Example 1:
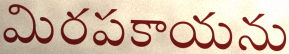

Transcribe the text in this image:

మిరపకాయను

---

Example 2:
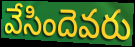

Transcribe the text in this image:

వేసిందెవరు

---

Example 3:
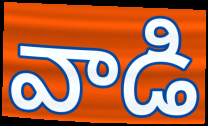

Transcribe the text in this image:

వాడి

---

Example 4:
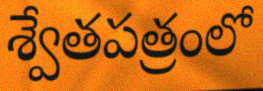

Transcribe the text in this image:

శ్వేతపత్రంలో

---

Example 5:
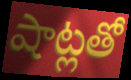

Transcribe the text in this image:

షాట్లతో